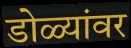
डोळ्यांवर